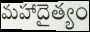
మహాదైత్యం